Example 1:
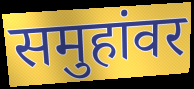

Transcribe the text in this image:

समुहांवर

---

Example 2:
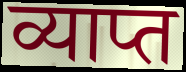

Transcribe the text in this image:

व्याप्त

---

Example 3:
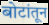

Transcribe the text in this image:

बोटांतून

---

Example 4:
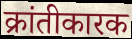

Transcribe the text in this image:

क्रांतीकारक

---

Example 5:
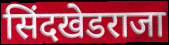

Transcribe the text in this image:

सिंदखेडराजा